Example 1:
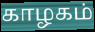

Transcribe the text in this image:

காழகம்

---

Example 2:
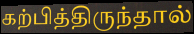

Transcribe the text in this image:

கற்பித்திருந்தால்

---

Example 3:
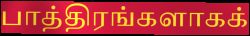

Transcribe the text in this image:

பாத்திரங்களாகக்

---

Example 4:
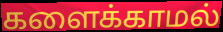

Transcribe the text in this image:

களைக்காமல்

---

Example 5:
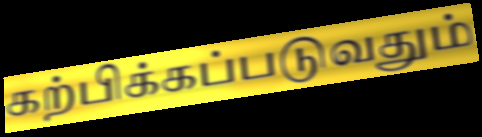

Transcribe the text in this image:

கற்பிக்கப்படுவதும்